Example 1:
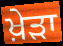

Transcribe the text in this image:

ਖ਼ੇੜਾ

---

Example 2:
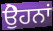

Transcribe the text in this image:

ਉੇਹਨਾਂ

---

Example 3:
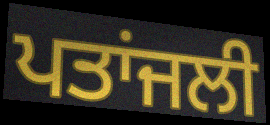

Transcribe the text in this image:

ਪਤਾਂਜਲੀ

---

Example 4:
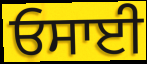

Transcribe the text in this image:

ਓਸਾਈ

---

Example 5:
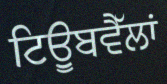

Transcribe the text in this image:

ਟਿਊੁਬਵੈੱਲਾਂ